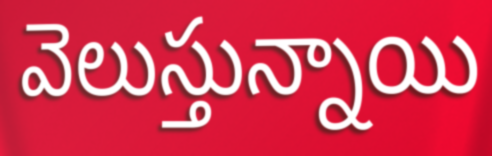
వెలుస్తున్నాయి